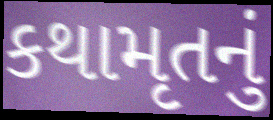
કથામૃતનું